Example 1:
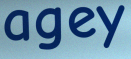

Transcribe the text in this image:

agey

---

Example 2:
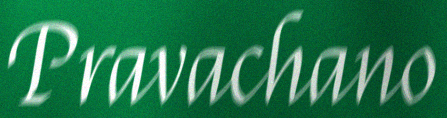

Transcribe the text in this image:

Pravachano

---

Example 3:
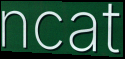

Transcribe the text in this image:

ncat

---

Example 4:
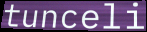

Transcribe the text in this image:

tunceli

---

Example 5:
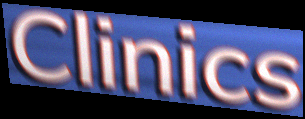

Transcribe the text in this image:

Clinics